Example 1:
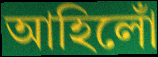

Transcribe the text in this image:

আহিলোঁ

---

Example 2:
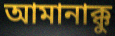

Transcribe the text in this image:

আমানাক্কু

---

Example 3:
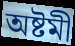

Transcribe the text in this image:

অষ্টমী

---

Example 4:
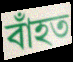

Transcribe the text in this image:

বাঁহত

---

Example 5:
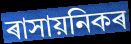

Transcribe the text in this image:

ৰাসায়নিকৰ